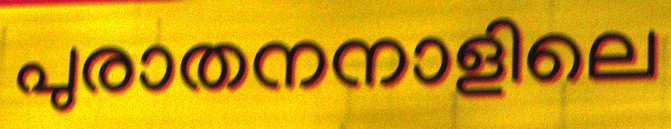
പുരാതനനാളിലെ